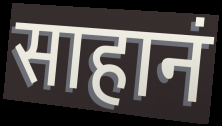
साहानं